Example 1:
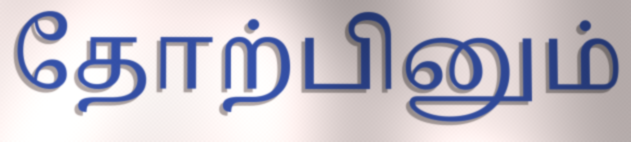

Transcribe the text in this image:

தோற்பினும்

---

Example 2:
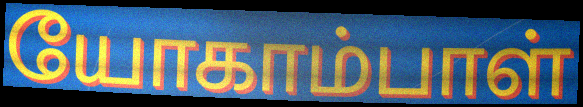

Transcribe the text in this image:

யோகாம்பாள்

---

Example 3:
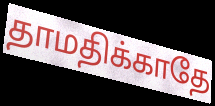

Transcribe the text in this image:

தாமதிக்காதே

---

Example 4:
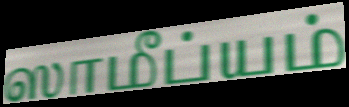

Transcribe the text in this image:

ஸாமீப்யம்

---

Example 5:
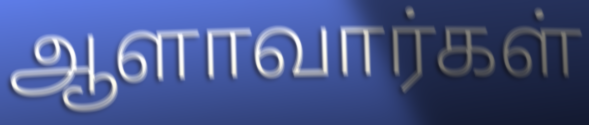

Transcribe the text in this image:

ஆளாவார்கள்